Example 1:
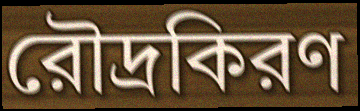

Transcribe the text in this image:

রৌদ্রকিরণ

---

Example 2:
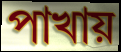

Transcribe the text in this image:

পাখায়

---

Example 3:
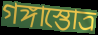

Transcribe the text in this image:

গঙ্গাস্তোত্র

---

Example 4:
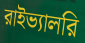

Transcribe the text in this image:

রাইভ্যালরি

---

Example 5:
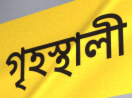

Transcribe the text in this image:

গৃহস্থালী